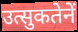
उत्सुकतेनें